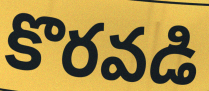
కొరవడి